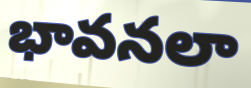
భావనలా